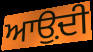
ਆਉ਼ਦੀ